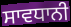
ਸਾਵਧਾਨੀ